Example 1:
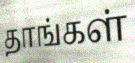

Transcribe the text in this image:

தாங்கள்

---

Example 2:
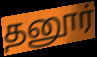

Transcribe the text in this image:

தனூர்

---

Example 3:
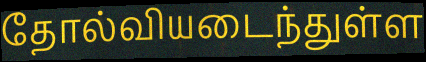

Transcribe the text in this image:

தோல்வியடைந்துள்ள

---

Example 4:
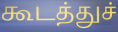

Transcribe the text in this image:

கூடத்துச்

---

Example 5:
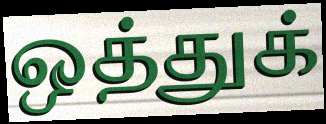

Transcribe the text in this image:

ஒத்துக்